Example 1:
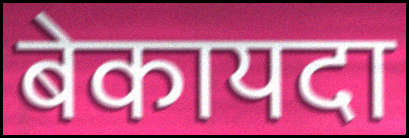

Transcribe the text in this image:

बेकायदा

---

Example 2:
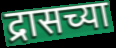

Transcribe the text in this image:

द्रासच्या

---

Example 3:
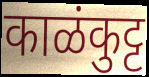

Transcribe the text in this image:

काळंकुट्ट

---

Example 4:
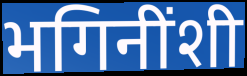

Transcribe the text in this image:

भगिनींशी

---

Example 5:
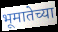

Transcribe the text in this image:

भूमातेच्या